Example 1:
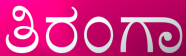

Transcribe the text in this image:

ತಿರಂಗಾ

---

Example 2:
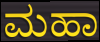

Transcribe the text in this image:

ಮಹಾ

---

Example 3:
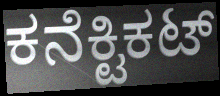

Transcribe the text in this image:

ಕನೆಕ್ಟಿಕಟ್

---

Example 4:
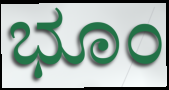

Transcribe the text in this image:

ಭೂಂ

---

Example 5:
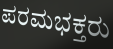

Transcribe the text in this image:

ಪರಮಭಕ್ತರು